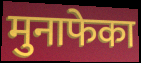
मुनाफेका